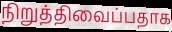
நிறுத்திவைப்பதாக